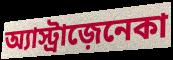
অ্যাস্ট্রাজ়েনেকা